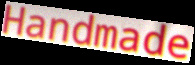
Handmade